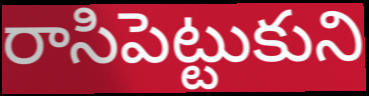
రాసిపెట్టుకుని